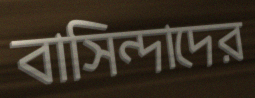
বাসিন্দাদের